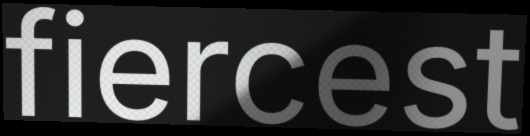
fiercest